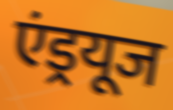
एंड्रयूज